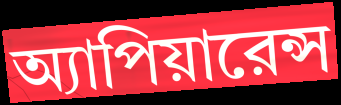
অ্যাপিয়ারেন্স